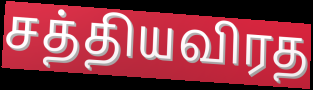
சத்தியவிரத